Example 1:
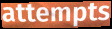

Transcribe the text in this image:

attempts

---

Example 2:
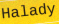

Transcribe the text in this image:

Halady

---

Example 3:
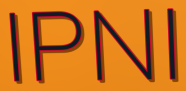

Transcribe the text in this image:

IPNI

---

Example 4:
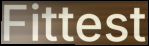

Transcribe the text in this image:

Fittest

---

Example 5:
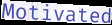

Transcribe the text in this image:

Motivated